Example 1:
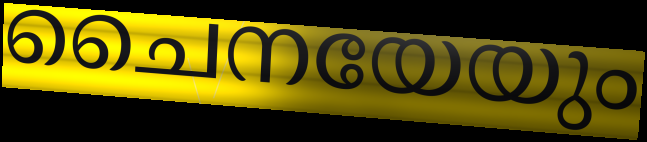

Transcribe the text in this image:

ചൈനയേയും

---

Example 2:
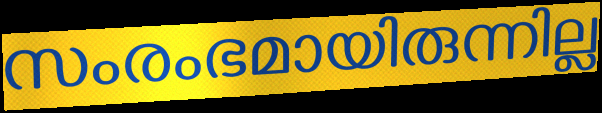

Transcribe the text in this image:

സംരംഭമായിരുന്നില്ല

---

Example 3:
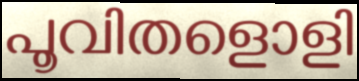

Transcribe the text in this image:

പൂവിതളൊളി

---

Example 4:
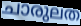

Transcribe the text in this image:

ചാരുലത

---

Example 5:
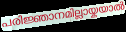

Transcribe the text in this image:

പരിജ്ഞാനമില്ലായ്കയാൽ